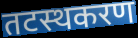
तटस्थकरण